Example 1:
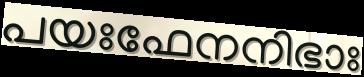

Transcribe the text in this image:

പയഃഫേനനിഭാഃ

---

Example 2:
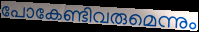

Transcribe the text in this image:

പോകേണ്ടിവരുമെന്നും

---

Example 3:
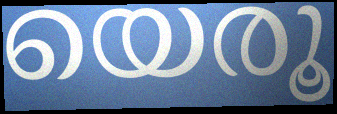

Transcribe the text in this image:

യെരൂ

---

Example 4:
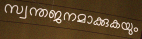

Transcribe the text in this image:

സ്വന്തജനമാക്കുകയും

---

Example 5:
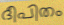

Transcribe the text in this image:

ദീപിതം